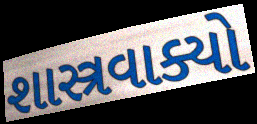
શાસ્ત્રવાક્યો